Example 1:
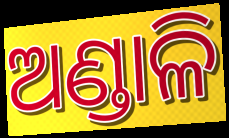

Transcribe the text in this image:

ଅଣ୍ଡାଳି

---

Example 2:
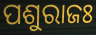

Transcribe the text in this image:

ପଶୁରାଜଃ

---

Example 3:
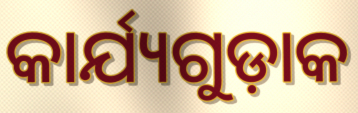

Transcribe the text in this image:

କାର୍ଯ୍ୟଗୁଡ଼ାକ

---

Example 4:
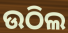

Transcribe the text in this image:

ଉଠିଲ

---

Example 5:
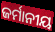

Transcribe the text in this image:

ଜର୍ମାନୀୟ